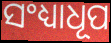
ସଂଧ୍ୟାଧୂପ